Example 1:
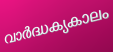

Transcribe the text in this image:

വാർദ്ധക്യകാലം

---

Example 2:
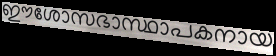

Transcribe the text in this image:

ഈശോസഭാസ്ഥാപകനായ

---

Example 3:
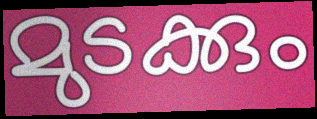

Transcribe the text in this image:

മുടക്കും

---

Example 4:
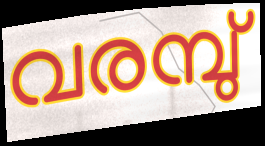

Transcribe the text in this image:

വരമ്പു്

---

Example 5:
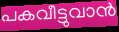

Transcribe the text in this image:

പകവീട്ടുവാൻ